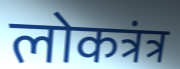
लोकत्रंत्र